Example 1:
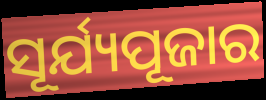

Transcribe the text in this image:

ସୂର୍ଯ୍ୟପୂଜାର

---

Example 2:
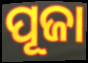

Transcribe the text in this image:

ପୂଜା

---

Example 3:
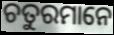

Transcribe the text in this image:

ଚତୁରମାନେ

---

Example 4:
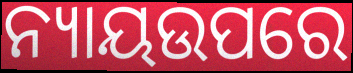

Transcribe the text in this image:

ନ୍ୟାୟଉପରେ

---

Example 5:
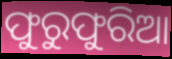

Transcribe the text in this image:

ଫୁରୁଫୁରିଆ